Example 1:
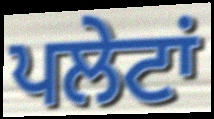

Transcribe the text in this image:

ਪਲੇਟਾਂ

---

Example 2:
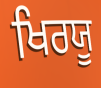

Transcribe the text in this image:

ਖਿਰਯੂ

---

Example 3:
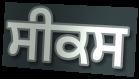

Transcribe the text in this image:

ਸੀਕਸ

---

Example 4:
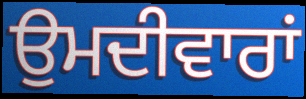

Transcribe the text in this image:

ਉਮਦੀਵਾਰਾਂ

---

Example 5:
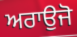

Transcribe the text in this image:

ਅਰਾਉਜੋ